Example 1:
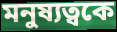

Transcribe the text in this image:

মনুষ্যত্বকে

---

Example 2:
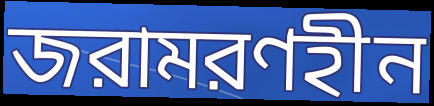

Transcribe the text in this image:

জরামরণহীন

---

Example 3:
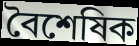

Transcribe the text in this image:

বৈশেষিক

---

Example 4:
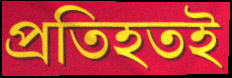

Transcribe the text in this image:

প্রতিহতই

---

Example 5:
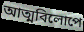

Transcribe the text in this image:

আত্মবিলোপে